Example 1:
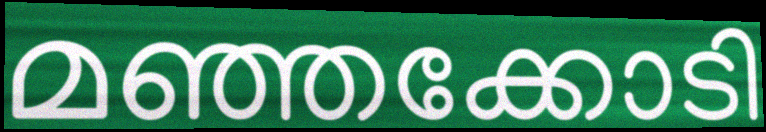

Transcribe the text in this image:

മഞ്ഞക്കോടി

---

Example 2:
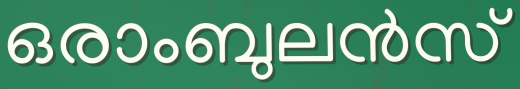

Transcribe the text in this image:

ഒരാംബുലൻസ്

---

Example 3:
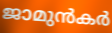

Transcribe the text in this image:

ജാമുൻകർ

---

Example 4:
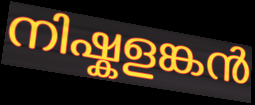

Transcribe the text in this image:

നിഷ്കളങ്കൻ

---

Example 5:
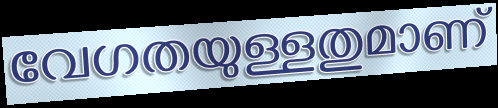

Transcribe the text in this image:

വേഗതയുള്ളതുമാണ്